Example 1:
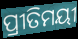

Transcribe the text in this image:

ପ୍ରୀତିମୟୀ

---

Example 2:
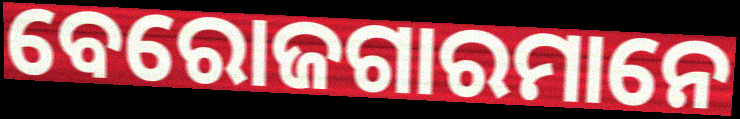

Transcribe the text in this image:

ବେରୋଜଗାରମାନେ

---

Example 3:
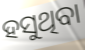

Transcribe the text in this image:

ହସୁଥିବା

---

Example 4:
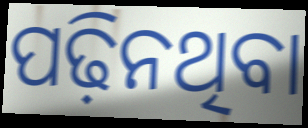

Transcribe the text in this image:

ପଢ଼ିନଥିବା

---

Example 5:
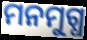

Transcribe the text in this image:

ମନମୁଗ୍ଧ